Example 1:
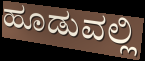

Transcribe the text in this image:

ಹೂಡುವಲ್ಲಿ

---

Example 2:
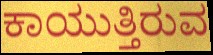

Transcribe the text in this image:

ಕಾಯುತ್ತಿರುವ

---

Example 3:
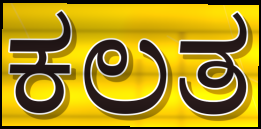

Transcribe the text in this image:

ಕಲತ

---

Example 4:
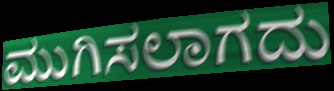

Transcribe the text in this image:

ಮುಗಿಸಲಾಗದು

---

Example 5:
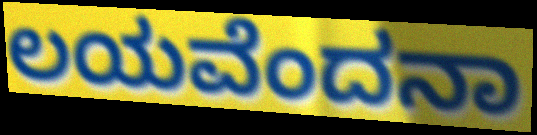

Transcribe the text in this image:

ಲಯವೆಂದನಾ